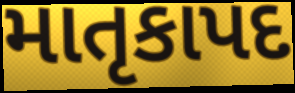
માતૃકાપદ